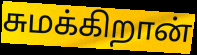
சுமக்கிறான்